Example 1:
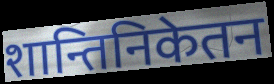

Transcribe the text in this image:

शान्तिनिकेतन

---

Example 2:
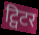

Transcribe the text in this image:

ट्विटर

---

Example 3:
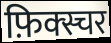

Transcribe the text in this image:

फ़िक्स्चर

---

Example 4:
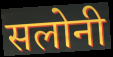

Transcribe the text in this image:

सलोनी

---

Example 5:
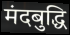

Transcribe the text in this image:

मंदबुद्धि